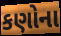
કણોના